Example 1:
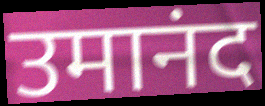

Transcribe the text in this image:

उमानंद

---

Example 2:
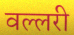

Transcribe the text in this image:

वल्लरी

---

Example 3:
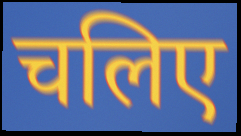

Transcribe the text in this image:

चलिए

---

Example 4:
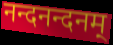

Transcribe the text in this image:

नन्दनन्दनम्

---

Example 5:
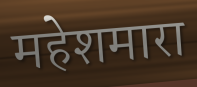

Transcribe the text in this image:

महेशमारा